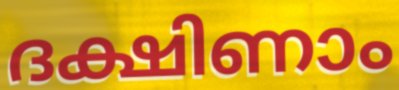
ദക്ഷിണാം